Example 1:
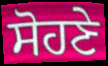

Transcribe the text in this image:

ਸੋਹਣੇ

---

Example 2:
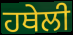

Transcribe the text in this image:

ਹਥੇਲੀ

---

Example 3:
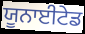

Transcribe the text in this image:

ਯੂਨਾਈਟੇਡ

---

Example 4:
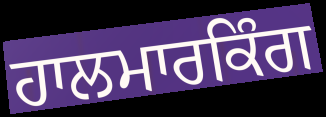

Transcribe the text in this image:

ਹਾਲਮਾਰਕਿੰਗ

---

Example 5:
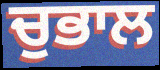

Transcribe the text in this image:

ਚੁਭਾਲ